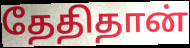
தேதிதான்